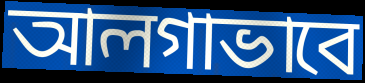
আলগাভাবে